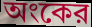
অংকের